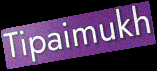
Tipaimukh